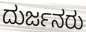
ದುರ್ಜನರು